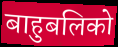
बाहुबलिको